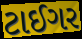
ટાઈગર